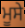
ਮੂਸੇ